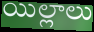
యిల్లాలు